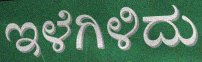
ಇಳೆಗಿಳಿದು